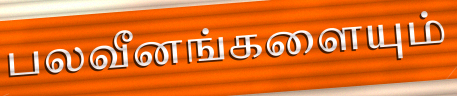
பலவீனங்களையும்